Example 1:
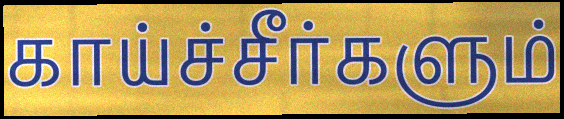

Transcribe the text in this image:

காய்ச்சீர்களும்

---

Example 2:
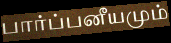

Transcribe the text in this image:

பார்ப்பனீயமும்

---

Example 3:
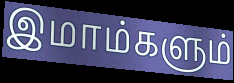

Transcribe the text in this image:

இமாம்களும்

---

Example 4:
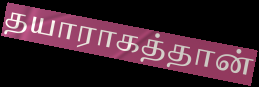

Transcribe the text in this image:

தயாராகத்தான்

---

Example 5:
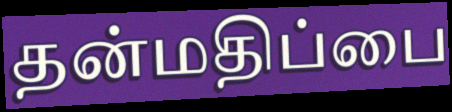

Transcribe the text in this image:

தன்மதிப்பை